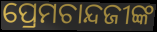
ପ୍ରେମଚାନ୍ଦଜୀଙ୍କ